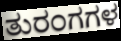
ತುರಂಗಗಳ